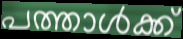
പത്താൾക്ക്